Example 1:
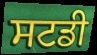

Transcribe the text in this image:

ਸਟਡੀ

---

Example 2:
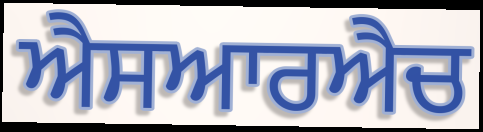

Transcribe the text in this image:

ਐਸਆਰਐਚ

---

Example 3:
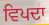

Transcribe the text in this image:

ਵਿਪਦਾ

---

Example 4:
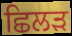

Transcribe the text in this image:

ਛਿਲੜ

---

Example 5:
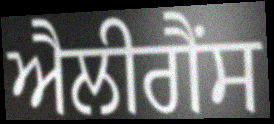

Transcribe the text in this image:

ਐਲੀਗੈਂਸ